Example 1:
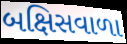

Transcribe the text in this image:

બક્ષિસવાળા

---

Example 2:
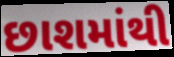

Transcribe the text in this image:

છાશમાંથી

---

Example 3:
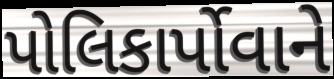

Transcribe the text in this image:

પોલિકાર્પોવાને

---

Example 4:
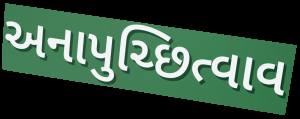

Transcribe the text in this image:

અનાપુચ્છિત્વાવ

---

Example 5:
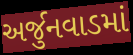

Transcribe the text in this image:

અર્જુનવાડમાં